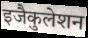
इजैकुलेशन